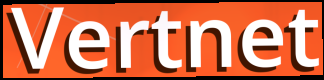
Vertnet